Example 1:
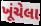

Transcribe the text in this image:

ખૂંચેલા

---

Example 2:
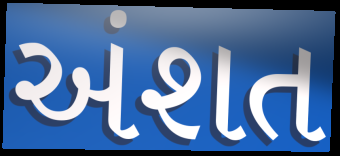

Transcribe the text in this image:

અંશત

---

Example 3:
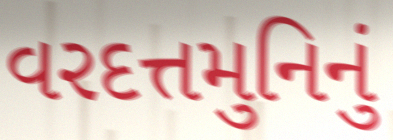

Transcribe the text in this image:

વરદત્તમુનિનું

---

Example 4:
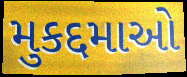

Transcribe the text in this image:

મુકદ્દમાઓ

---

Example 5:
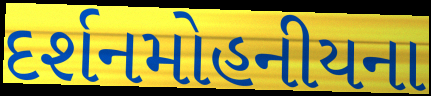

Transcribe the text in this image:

દર્શનમોહનીયના